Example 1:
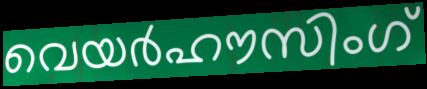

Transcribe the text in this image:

വെയർഹൗസിംഗ്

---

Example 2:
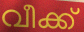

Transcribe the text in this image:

വീക്ക്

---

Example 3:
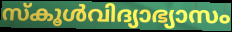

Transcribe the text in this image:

സ്കൂൾവിദ്യാഭ്യാസം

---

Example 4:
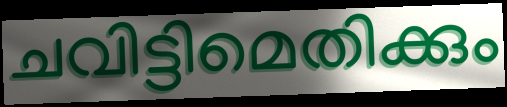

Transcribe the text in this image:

ചവിട്ടിമെതിക്കും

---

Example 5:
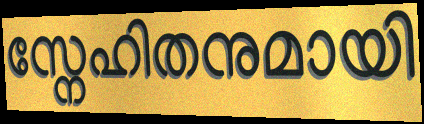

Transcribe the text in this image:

സ്നേഹിതനുമായി